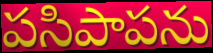
పసిపాపను